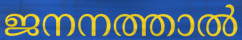
ജനനത്താൽ